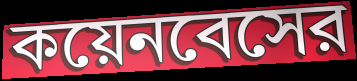
কয়েনবেসের